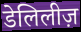
डेलिलीज़